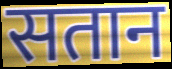
सतान